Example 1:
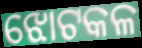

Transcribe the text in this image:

ଝୋଟକଳ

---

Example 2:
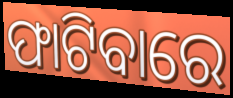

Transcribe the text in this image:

ଫାଟିବାରେ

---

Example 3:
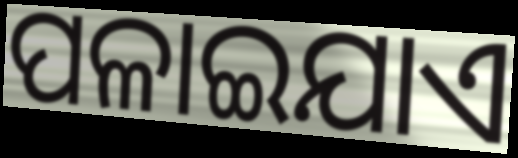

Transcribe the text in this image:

ପଳାଇଯାଏ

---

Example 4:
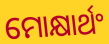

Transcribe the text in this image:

ମୋକ୍ଷାର୍ଥଂ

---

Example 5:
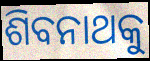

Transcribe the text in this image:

ଶିବନାଥକୁ